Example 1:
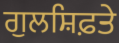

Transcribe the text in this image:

ਗੁਲਸ਼ਿਫ਼ਤੇ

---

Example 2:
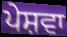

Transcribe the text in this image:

ਪੇਸ਼ਵਾ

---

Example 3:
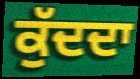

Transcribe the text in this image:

ਕੁੱਦਦਾ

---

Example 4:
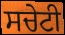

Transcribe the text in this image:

ਸਚੇਟੀ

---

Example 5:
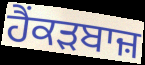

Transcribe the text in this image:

ਹੈਂਕੜਬਾਜ਼